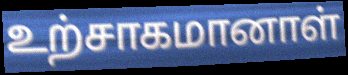
உற்சாகமானாள்